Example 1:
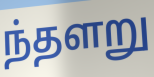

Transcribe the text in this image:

ந்தளறு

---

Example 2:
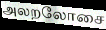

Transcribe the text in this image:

அலறலோசை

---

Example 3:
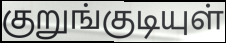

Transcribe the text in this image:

குறுங்குடியுள்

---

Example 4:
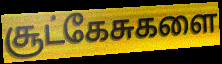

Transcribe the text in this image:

சூட்கேசுகளை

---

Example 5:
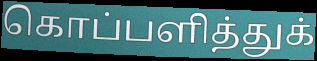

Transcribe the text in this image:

கொப்பளித்துக்